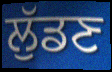
ਲੁੱਡਣ